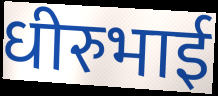
धीरुभाई